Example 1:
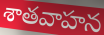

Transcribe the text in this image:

శాతవాహన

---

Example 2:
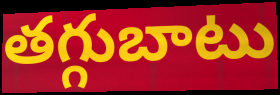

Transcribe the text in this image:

తగ్గుబాటు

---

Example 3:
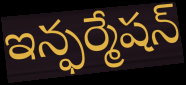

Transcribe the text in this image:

ఇన్ఫర్మేషన్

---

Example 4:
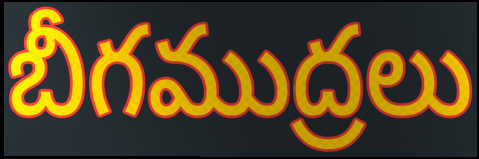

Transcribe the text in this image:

బీగముద్రలు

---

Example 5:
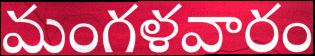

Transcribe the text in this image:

మంగళవారం